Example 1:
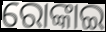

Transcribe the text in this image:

ରୋଙ୍କାଇ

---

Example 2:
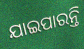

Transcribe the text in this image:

ଯାଇପାରନ୍ତି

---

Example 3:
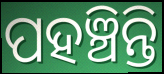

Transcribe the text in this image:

ପହଞ୍ଚିନ୍ତି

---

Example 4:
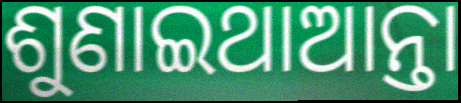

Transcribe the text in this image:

ଶୁଣାଇଥାଆନ୍ତା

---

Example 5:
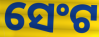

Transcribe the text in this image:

ସେଂଟ